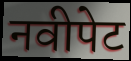
नवीपेट